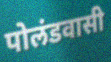
पोलंडवासी